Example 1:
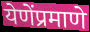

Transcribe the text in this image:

येणेंप्रमाणे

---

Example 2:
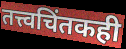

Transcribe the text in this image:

तत्त्वचिंतकही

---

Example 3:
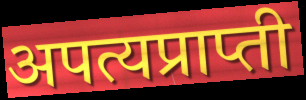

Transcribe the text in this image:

अपत्यप्राप्ती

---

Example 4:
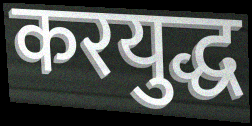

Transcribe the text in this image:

करयुद्ध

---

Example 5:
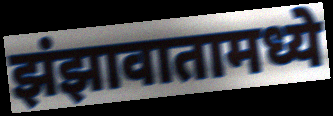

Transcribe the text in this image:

झंझावातामध्ये